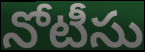
నోటీసు